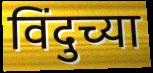
विंदुच्या